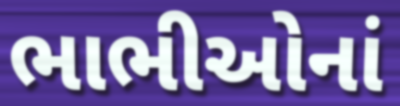
ભાભીઓનાં